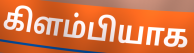
கிளம்பியாக